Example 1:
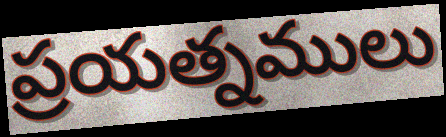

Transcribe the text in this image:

ప్రయత్నములు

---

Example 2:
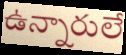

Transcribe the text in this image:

ఉన్నారులే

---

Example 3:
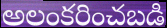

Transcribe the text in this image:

అలంకరించబడి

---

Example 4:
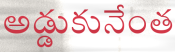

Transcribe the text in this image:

అడ్డుకునేంత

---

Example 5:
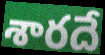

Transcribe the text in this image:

శారదే